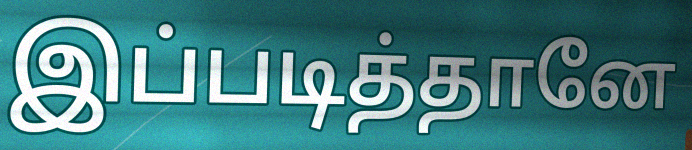
இப்படித்தானே